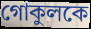
গোকুলকে